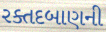
રક્તદબાણની